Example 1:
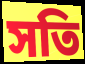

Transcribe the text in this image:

সতি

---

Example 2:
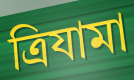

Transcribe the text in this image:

ত্রিযামা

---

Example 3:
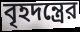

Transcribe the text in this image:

বৃহদন্ত্রের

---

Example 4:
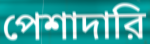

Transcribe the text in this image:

পেশাদারি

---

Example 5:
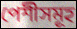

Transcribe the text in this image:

পেশীসমূহ